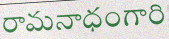
రామనాధంగారి